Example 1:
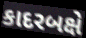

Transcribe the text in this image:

કાદરબક્ષે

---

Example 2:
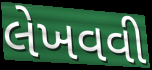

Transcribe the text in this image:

લેખવવી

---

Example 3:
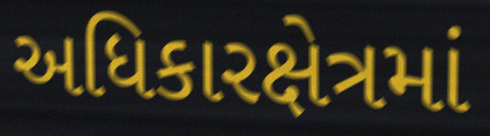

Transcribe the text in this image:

અધિકારક્ષેત્રમાં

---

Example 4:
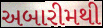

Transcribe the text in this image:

અબારીમથી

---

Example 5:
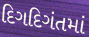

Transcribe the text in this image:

દિગદિગંતમાં